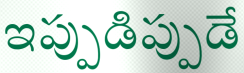
ఇప్పుడిప్పుడే